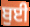
ਬੁਈ